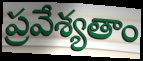
ప్రవేశ్యతాం